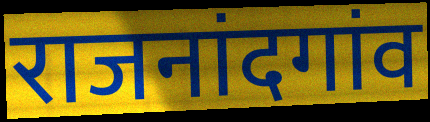
राजनांदगांव